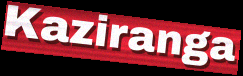
Kaziranga